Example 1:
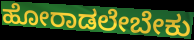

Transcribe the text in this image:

ಹೋರಾಡಲೇಬೇಕು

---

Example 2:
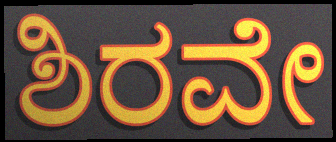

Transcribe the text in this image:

ಶಿರವೇ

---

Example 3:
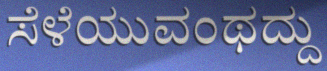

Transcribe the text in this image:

ಸೆಳೆಯುವಂಥದ್ದು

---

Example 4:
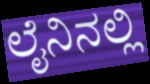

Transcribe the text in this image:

ಲೈನಿನಲ್ಲಿ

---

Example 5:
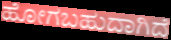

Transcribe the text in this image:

ಹೋಗಬಹುದಾಗಿದೆ